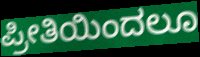
ಪ್ರೀತಿಯಿಂದಲೂ